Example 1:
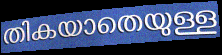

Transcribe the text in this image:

തികയാതെയുള്ള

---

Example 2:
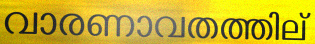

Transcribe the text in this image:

വാരണാവതത്തില്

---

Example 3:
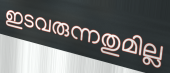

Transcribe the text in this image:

ഇടവരുന്നതുമില്ല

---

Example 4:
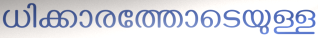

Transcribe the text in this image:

ധിക്കാരത്തോടെയുള്ള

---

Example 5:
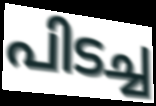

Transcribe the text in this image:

പിടച്ച